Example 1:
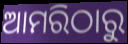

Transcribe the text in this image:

ଆମରିଠାରୁ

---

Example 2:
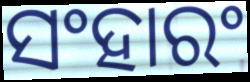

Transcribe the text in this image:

ସଂହାରଂ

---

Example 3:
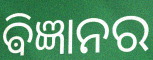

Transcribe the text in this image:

ଵିଜ୍ଞାନର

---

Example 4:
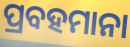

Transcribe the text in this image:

ପ୍ରବହମାନା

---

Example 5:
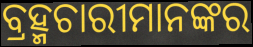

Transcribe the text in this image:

ବ୍ରହ୍ମଚାରୀମାନଙ୍କର